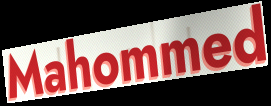
Mahommed